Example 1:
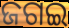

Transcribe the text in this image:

ଜଗଇ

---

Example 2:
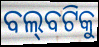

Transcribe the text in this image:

ବଲ୍‌ବଟିକୁ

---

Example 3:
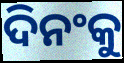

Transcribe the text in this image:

ଦିନଂକୁ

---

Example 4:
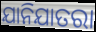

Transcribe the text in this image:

ଯାନିଯାତରା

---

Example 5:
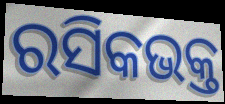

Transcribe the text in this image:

ରସିକଭକ୍ତ